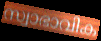
സ്വാഭാവിക